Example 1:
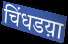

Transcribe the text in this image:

चिंधडय़ा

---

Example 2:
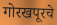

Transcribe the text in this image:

गोरखपूरचे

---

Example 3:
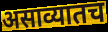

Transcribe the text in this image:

असाव्यातच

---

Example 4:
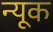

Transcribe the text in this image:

न्यूक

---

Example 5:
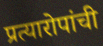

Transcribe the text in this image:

प्रत्यारोपांची